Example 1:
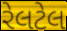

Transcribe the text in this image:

રેલટેલ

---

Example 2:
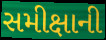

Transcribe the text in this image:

સમીક્ષાની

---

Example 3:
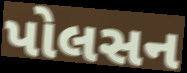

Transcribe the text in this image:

પોલસન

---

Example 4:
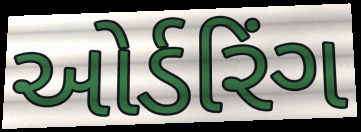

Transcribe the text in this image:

ઓર્ડરિંગ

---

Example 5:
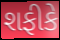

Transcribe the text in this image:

શફીકે